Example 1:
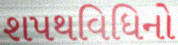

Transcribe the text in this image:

શપથવિધિનો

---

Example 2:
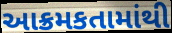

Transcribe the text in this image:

આક્રમકતામાંથી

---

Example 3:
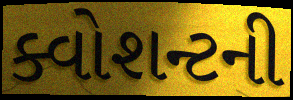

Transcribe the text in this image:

ક્વોશન્ટની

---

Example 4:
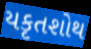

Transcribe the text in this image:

યકૃતશોથ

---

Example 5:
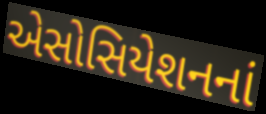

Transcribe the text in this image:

એસોસિયેશનનાં